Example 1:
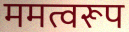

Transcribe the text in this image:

ममत्वरूप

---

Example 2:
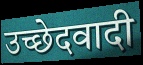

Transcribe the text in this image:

उच्छेदवादी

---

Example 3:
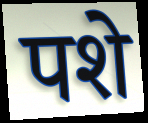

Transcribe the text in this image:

पशे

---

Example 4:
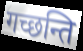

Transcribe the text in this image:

गच्छन्ति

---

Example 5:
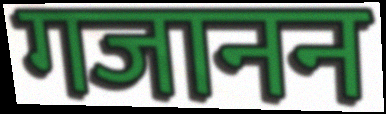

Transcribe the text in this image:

गजानन